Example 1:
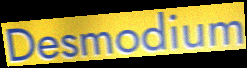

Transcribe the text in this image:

Desmodium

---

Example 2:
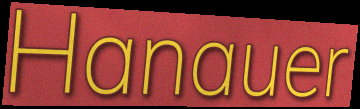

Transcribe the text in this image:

Hanauer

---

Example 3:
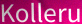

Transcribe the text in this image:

Kolleru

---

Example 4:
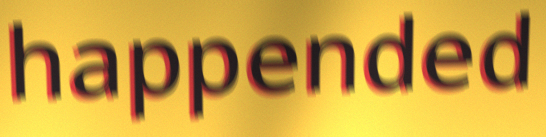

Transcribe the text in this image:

happended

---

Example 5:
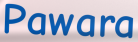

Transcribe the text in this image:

Pawara